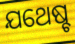
ଯଥେଷ୍ଚ